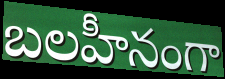
బలహీనంగా